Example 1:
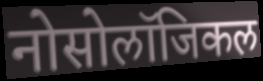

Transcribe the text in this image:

नोसोलॉजिकल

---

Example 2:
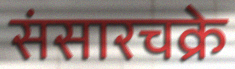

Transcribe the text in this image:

संसारचक्रे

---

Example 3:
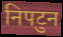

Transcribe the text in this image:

निपटुन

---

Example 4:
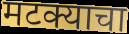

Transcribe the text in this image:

मटक्याचा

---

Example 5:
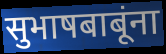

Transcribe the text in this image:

सुभाषबाबूंना